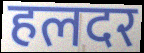
हलदर